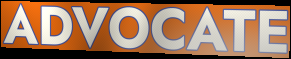
ADVOCATE